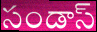
సండాస్